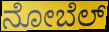
ನೋಬೆಲ್